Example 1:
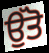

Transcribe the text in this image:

ਉੱਤੋ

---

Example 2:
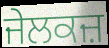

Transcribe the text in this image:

ਜੇਲਕਜ਼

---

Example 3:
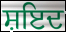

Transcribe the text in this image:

ਸ਼ਇਦ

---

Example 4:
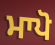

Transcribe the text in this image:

ਮਾਪੋ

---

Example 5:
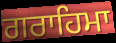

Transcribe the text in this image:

ਗਰਾਹਿਮਾ